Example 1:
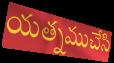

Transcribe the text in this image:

యత్నముచేసి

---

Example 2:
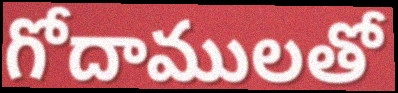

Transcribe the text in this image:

గోదాములతో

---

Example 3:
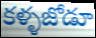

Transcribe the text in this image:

కళ్ళజోడూ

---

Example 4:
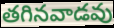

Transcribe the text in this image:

తగినవాడవు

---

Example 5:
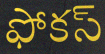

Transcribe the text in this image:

ఫోకస్